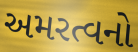
અમરત્વનો